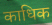
काधिक